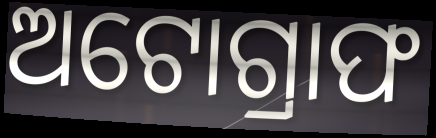
ଅଟୋଗ୍ରାଫ